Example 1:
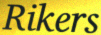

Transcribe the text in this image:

Rikers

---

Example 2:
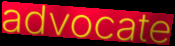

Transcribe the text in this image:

advocate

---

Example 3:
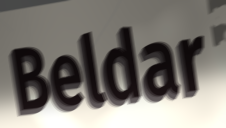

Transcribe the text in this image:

Beldar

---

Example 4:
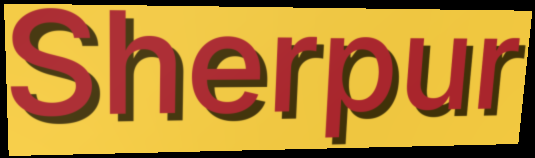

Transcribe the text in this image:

Sherpur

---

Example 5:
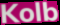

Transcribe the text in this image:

Kolb